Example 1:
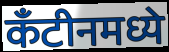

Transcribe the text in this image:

कँटीनमध्ये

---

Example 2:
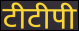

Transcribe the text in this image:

टीटीपी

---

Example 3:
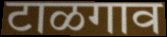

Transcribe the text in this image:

टाळगाव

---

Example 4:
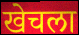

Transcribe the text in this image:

खेचला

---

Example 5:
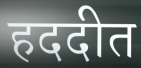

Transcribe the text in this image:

हददीत